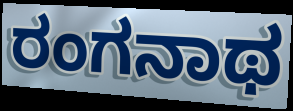
ರಂಗನಾಥ